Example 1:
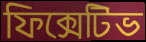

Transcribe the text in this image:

ফিক্সেটিভ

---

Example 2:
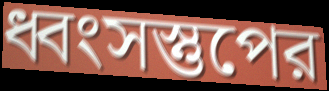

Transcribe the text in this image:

ধ্বংসস্তুপের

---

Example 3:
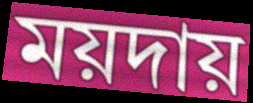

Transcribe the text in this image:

ময়দায়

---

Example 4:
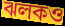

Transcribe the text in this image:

ঝলকও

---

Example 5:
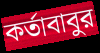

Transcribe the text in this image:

কর্তাবাবুর